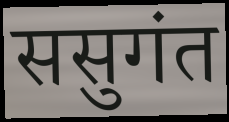
ससुगंत